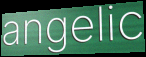
angelic